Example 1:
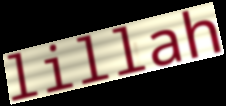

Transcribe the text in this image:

lillah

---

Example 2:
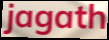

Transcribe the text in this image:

jagath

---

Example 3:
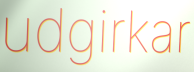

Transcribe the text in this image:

udgirkar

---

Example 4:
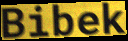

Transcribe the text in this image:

Bibek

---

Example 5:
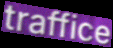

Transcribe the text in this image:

traffice